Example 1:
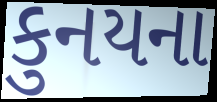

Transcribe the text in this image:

કુનયના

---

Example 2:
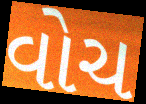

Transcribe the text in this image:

વોચ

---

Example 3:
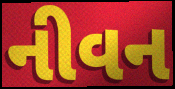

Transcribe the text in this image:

નીવન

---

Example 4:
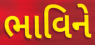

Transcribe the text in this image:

ભાવિને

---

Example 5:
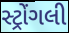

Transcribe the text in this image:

સ્ટ્રોંગલી